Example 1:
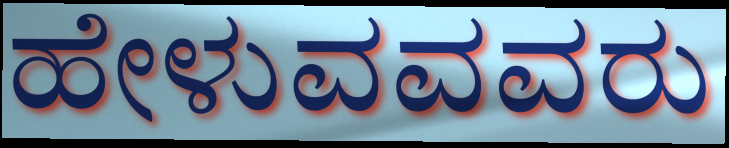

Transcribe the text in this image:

ಹೇಳುವವವರು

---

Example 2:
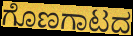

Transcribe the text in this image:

ಗೊಣಗಾಟದ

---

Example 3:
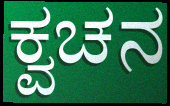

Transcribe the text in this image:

ಕ್ವಚನ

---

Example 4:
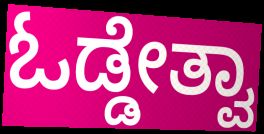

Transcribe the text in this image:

ಓಡ್ಡೇತ್ವಾ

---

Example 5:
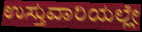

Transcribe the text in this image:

ಉಸ್ತುವಾರಿಯಲ್ಲೇ